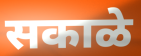
सकाळे